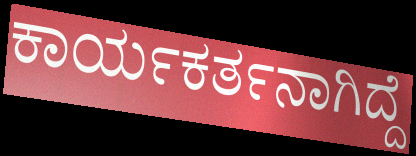
ಕಾರ್ಯಕರ್ತನಾಗಿದ್ದೆ